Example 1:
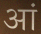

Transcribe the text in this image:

आं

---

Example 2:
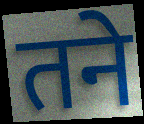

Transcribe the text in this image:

तने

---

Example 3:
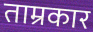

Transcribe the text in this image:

ताम्रकार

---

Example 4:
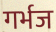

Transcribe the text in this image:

गर्भज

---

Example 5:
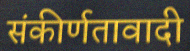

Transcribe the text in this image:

संकीर्णतावादी